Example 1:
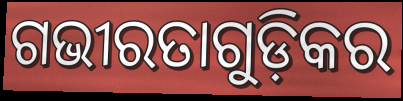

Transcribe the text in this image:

ଗଭୀରତାଗୁଡ଼ିକର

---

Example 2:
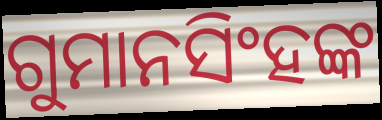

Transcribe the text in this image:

ଗୁମାନସିଂହଙ୍କ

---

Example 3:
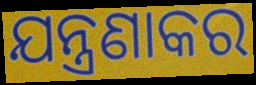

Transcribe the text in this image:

ଯନ୍ତ୍ରଣାକର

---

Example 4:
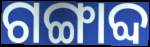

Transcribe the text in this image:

ଗଙ୍ଗାବ୍ଦ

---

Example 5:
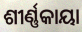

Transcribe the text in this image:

ଶୀର୍ଣ୍ଣକାୟା